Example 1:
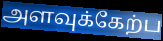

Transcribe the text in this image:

அளவுக்கேற்ப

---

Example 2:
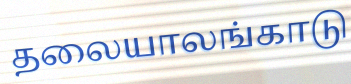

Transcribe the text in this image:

தலையாலங்காடு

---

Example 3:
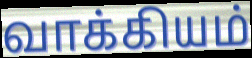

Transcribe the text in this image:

வாக்கியம்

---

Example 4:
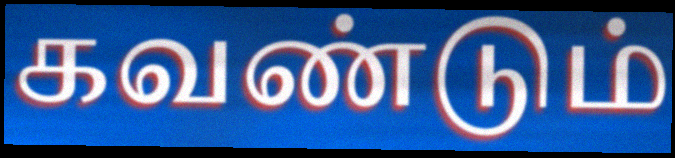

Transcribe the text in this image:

கவண்டும்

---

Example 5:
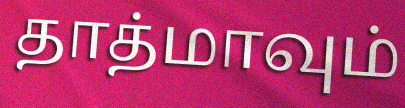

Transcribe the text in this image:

தாத்மாவும்